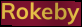
Rokeby